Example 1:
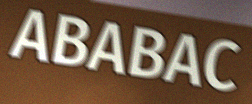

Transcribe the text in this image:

ABABAC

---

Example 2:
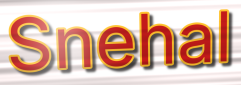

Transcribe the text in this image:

Snehal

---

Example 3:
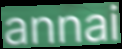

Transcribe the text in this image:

annai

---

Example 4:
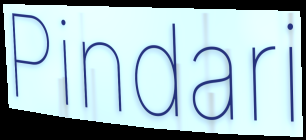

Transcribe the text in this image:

Pindari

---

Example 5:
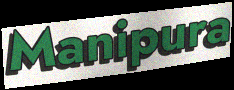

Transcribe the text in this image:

Manipura